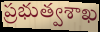
ప్రభుత్వశాఖ